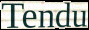
Tendu